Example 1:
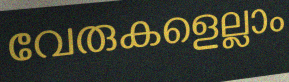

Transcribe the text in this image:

വേരുകളെല്ലാം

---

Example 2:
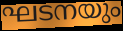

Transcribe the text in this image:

ഘടനയും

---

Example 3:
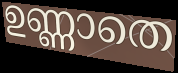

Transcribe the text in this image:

ഉണ്ണാതെ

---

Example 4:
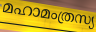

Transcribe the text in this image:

മഹാമംത്രസ്യ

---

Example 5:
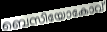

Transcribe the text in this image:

ബെസിയോകോവ്